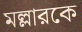
মল্লারকে